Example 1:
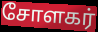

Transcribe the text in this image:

சோளகர்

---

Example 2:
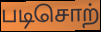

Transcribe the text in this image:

படிசொற்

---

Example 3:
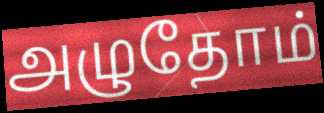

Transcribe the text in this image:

அழுதோம்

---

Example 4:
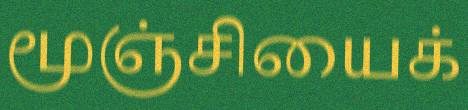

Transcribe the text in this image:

மூஞ்சியைக்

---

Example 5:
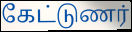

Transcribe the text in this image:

கேட்டுணர்